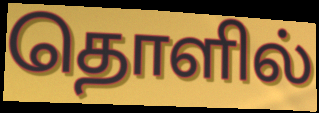
தொளில்